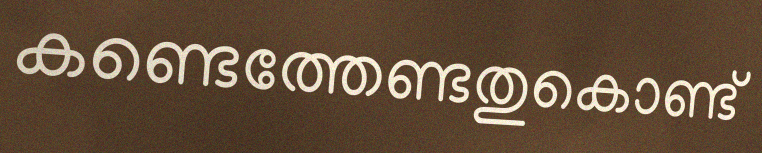
കണ്ടെത്തേണ്ടതുകൊണ്ട്